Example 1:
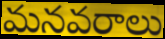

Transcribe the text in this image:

మనవరాలు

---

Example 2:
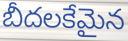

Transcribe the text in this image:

బీదలకేమైన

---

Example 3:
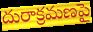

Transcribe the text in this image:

దురాక్రమణపై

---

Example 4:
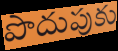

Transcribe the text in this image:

పొదుపుకు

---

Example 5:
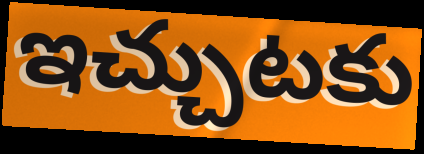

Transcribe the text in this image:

ఇచ్చుటకు